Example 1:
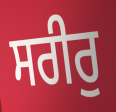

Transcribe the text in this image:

ਸਰੀਰੁ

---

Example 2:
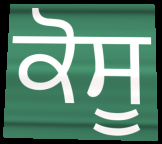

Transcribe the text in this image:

ਕੋਸੂ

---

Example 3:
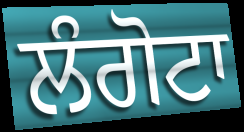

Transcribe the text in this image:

ਲੰਗੋਟਾ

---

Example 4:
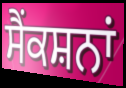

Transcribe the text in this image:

ਸੈਂਕਸ਼ਨਾਂ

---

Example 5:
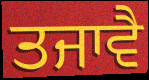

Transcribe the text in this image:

ਤਜਾਵੈ